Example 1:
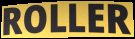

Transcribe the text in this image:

ROLLER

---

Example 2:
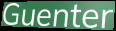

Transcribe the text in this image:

Guenter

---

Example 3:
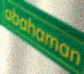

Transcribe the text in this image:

abahaman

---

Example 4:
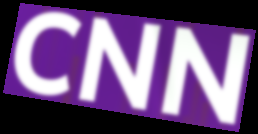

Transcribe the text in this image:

CNN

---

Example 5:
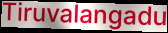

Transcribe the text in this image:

Tiruvalangadu